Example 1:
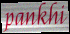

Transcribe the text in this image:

pankhi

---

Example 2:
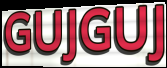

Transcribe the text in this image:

GUJGUJ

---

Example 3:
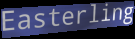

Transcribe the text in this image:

Easterling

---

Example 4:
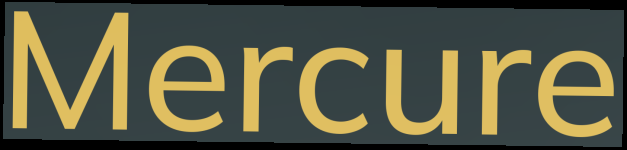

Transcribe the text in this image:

Mercure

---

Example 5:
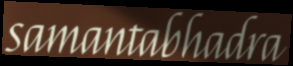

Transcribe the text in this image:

samantabhadra